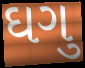
ઘગુ